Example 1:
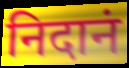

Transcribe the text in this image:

निदानं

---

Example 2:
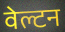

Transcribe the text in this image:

वेल्टन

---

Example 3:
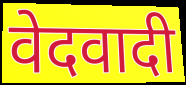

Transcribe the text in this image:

वेदवादी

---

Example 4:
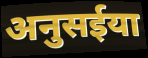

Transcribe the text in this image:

अनुसईया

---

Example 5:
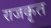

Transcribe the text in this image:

राजकृत